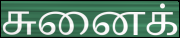
சுனைக்